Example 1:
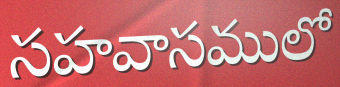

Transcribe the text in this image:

సహవాసములో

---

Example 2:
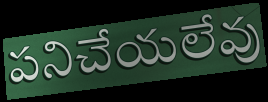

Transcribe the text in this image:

పనిచేయలేవు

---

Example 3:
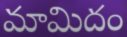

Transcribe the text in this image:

మామిదం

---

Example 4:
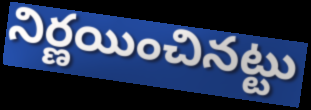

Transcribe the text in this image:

నిర్ణయించినట్టు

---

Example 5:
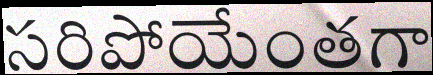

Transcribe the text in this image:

సరిపోయేంతగా